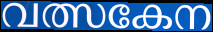
വത്സകേന